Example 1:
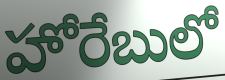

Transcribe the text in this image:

హోరేబులో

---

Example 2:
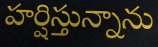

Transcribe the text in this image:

హర్షిస్తున్నాను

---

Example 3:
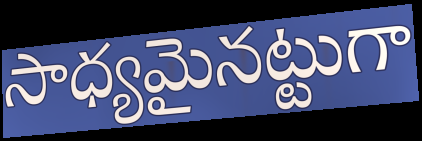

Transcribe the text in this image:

సాధ్యమైనట్టుగా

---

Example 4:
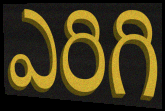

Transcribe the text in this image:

ఎరిగి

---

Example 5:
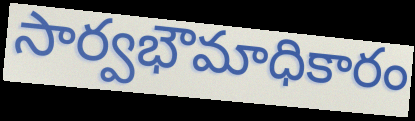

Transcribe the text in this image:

సార్వభౌమాధికారం